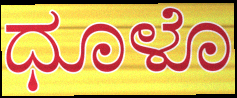
ಧೂಳೊ